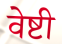
वेष्टी